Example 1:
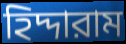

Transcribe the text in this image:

হিদ্দারাম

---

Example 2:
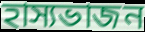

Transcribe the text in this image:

হাস্যভাজন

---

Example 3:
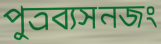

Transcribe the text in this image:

পুত্রব্যসনজং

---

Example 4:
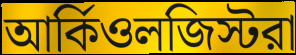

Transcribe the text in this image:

আর্কিওলজিস্টরা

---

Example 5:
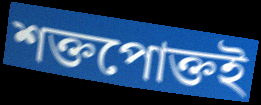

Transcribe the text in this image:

শক্তপোক্তই